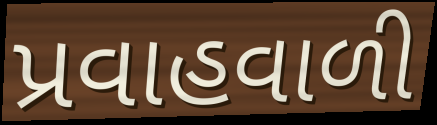
પ્રવાહવાળી